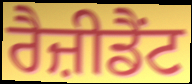
ਰੈਜ਼ੀਡੈਂਟ